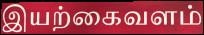
இயற்கைவளம்